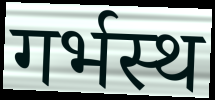
गर्भस्थ